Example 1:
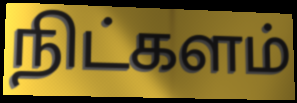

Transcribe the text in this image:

நிட்களம்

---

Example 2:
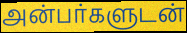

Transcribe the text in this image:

அன்பர்களுடன்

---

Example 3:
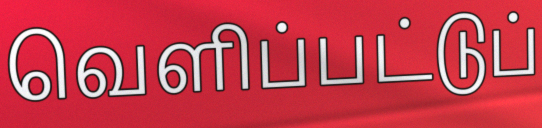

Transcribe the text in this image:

வெளிப்பட்டுப்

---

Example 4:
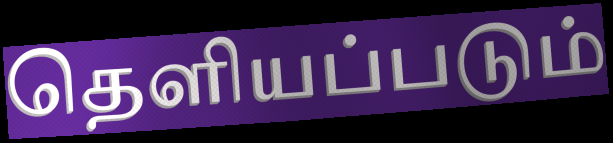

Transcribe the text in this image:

தெளியப்படும்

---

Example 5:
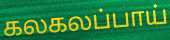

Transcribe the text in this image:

கலகலப்பாய்